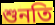
শুনতি